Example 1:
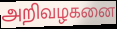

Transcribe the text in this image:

அறிவழகனை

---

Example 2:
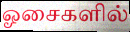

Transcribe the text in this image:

ஓசைகளில்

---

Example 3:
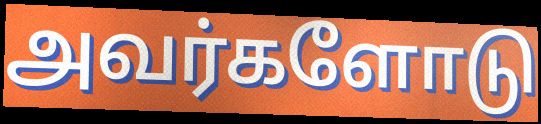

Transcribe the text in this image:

அவர்களோடு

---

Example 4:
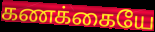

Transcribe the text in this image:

கணக்கையே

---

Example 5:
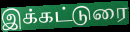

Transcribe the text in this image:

இக்கட்டுரை